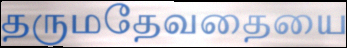
தருமதேவதையை